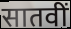
सातवीं